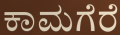
ಕಾಮಗೆರೆ